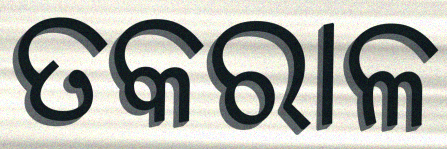
ତକରାଳ